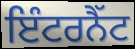
ਇੰਟਰਨੈੱਟ